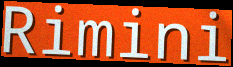
Rimini